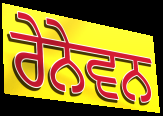
ਰੇਨੇਵਨ